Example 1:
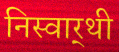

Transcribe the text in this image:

निस्वार्थी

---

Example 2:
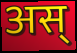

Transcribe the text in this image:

अस्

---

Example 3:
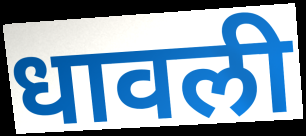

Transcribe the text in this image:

धावली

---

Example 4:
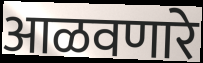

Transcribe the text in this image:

आळवणारे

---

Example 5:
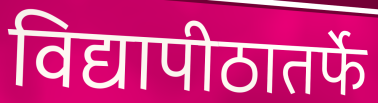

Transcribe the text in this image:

विद्यापीठातर्फे